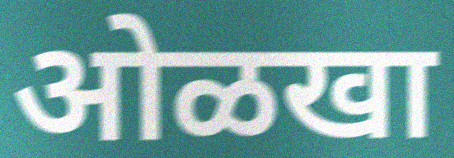
ओळखा